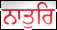
ਨਾਤੁਰਿ